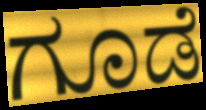
ಗೂಡೆ